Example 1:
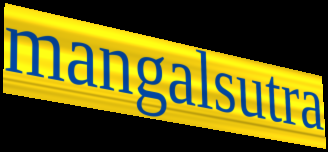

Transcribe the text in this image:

mangalsutra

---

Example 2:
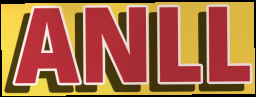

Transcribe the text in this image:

ANLL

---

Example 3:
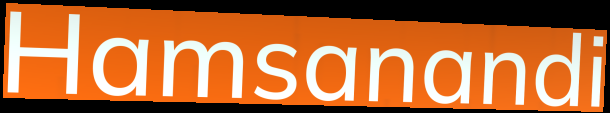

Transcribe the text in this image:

Hamsanandi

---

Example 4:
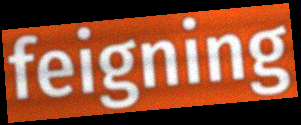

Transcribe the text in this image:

feigning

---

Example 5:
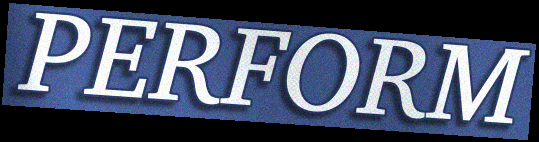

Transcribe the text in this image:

PERFORM